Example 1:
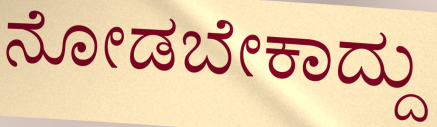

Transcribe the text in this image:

ನೋಡಬೇಕಾದ್ದು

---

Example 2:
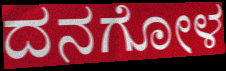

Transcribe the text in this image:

ದನಗೋಳ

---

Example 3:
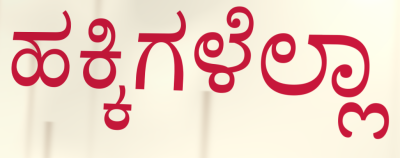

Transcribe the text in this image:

ಹಕ್ಕಿಗಳೆಲ್ಲಾ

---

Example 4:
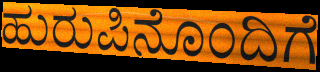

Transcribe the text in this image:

ಹುರುಪಿನೊಂದಿಗೆ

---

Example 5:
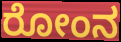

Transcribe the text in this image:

ರೋಂನ